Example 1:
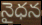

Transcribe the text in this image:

నైధన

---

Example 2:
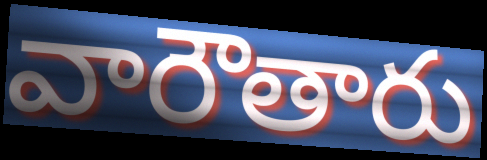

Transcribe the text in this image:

వారౌతారు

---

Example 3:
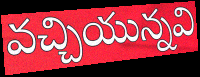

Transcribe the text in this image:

వచ్చియున్నవి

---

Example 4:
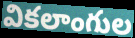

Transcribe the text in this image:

వికలాంగుల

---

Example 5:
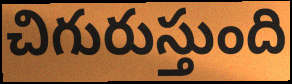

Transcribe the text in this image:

చిగురుస్తుంది